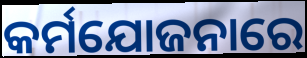
କର୍ମଯୋଜନାରେ